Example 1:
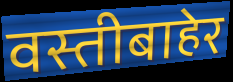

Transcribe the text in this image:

वस्तीबाहेर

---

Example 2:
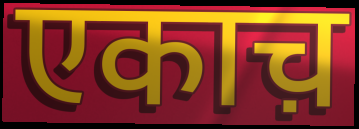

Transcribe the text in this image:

एकाच़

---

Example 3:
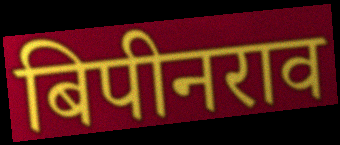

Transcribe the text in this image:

बिपीनराव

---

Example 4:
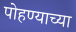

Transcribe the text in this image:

पोहण्याच्या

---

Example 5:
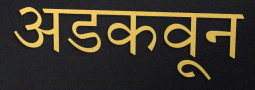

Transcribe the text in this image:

अडकवून